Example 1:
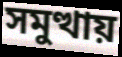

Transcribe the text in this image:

সমুত্থায়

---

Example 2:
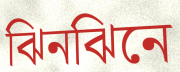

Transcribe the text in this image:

ঝিনঝিনে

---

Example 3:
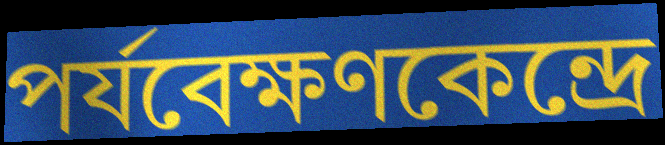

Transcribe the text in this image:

পর্যবেক্ষণকেন্দ্রে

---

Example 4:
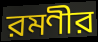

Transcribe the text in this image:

রমণীর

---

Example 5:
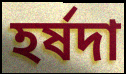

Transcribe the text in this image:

হর্ষদা